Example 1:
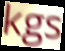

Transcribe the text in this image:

kgs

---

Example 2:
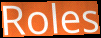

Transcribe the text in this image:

Roles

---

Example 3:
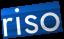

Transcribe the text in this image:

riso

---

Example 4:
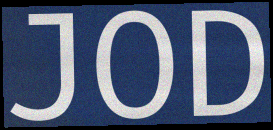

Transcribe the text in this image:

JOD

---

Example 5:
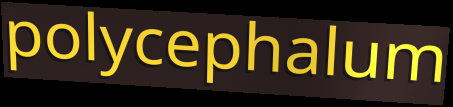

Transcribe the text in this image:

polycephalum